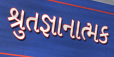
શ્રુતજ્ઞાનાત્મક